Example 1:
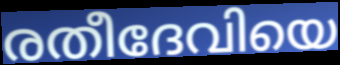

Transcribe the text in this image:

രതീദേവിയെ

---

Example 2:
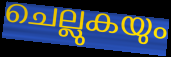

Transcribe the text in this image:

ചെല്ലുകയും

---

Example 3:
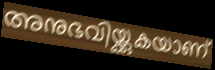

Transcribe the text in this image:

അനുഭവിയ്ക്കുകയാണ്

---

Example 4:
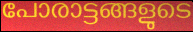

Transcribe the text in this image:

പോരാട്ടങ്ങളുടെ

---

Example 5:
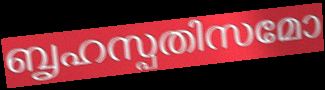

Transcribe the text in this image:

ബൃഹസ്പതിസമോ